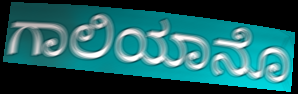
ಗಾಲಿಯಾನೊ